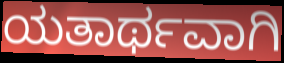
ಯತಾರ್ಥವಾಗಿ